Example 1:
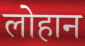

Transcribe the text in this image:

लोहान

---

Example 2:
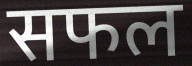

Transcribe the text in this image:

सफल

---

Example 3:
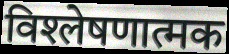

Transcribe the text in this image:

विश्लेषणात्मक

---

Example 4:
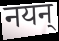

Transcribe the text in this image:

नयन्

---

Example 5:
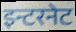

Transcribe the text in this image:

इन्टरनेट